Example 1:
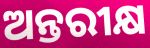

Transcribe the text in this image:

ଅନ୍ତରୀକ୍ଷ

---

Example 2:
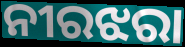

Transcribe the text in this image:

ନୀରଝରା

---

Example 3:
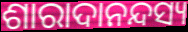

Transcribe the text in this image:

ଶାରାଦାନନ୍ଦସ୍ୟ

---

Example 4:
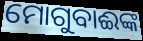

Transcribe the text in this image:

ମୋଗୁବାଈଙ୍କ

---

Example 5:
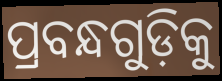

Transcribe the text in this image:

ପ୍ରବନ୍ଧଗୁଡ଼ିକୁ